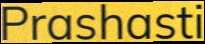
Prashasti